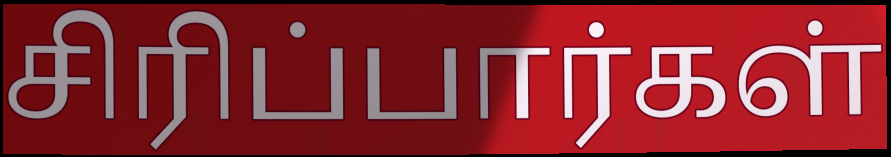
சிரிப்பார்கள்